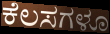
ಕೆಲಸಗಳೂ